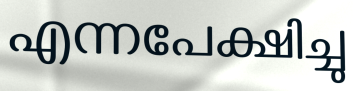
എന്നപേക്ഷിച്ചു